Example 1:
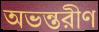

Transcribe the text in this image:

অভন্তরীণ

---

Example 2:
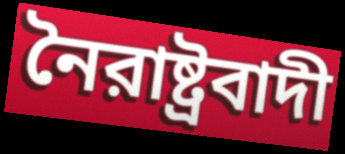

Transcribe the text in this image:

নৈরাষ্ট্রবাদী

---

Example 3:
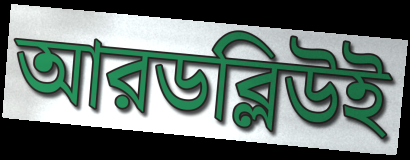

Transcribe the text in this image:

আরডব্লিউই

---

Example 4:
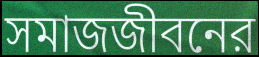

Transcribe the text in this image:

সমাজজীবনের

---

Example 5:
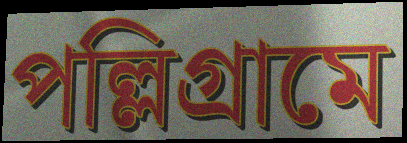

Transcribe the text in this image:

পল্লিগ্রামে